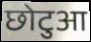
छोटुआ